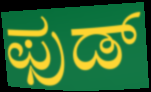
ಫುಡ್